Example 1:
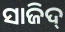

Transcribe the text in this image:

ସାଜିଦ୍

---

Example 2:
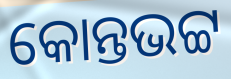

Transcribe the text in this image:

କୋନ୍ତଭଟ୍ଟ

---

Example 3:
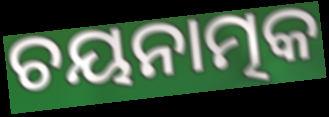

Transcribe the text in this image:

ଚୟନାତ୍ମକ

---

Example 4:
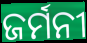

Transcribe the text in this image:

ଜର୍ମନୀ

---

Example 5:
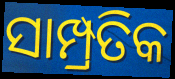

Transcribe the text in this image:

ସାମ୍ପ୍ରତିକ